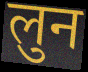
लुन